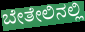
ಬೇತೇಲಿನಲ್ಲಿ